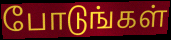
போடுங்கள்